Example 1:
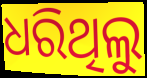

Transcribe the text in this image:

ଧରିଥିଲୁ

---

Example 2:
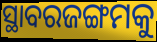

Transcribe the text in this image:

ସ୍ଥାବରଜଙ୍ଗମକୁ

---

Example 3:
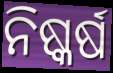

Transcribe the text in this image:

ନିଷ୍କର୍ଷ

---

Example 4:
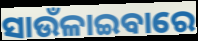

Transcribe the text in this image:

ସାଉଁଳାଇବାରେ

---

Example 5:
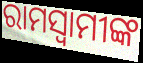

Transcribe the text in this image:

ରାମସ୍ୱାମୀଙ୍କ